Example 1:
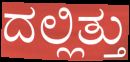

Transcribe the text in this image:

ದಲ್ಲಿತ್ತು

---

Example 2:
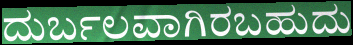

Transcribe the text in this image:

ದುರ್ಬಲವಾಗಿರಬಹುದು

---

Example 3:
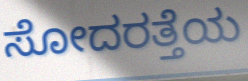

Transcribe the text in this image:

ಸೋದರತ್ತೆಯ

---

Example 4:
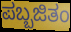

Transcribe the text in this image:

ಪಬ್ಬಜಿತಂ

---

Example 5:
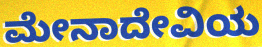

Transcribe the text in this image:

ಮೇನಾದೇವಿಯ